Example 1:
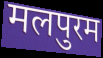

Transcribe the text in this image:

मलपुरम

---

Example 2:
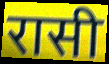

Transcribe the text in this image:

रासी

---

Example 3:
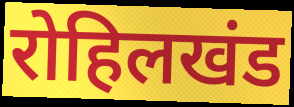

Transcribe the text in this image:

रोहिलखंड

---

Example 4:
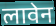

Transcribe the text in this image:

लावेन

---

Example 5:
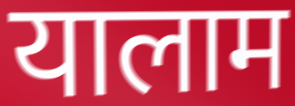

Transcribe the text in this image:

यालाम